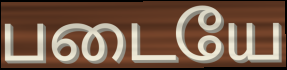
படையே